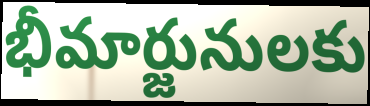
భీమార్జునులకు